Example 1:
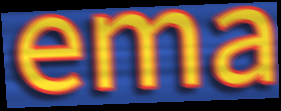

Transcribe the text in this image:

ema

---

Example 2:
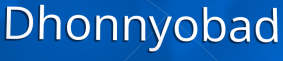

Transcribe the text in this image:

Dhonnyobad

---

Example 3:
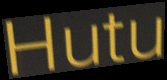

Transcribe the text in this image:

Hutu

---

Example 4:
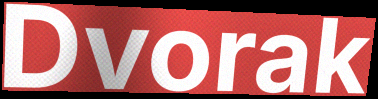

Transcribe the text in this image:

Dvorak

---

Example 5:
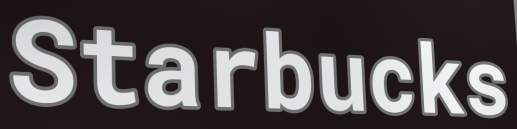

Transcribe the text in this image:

Starbucks